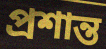
প্রশান্ত